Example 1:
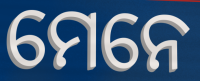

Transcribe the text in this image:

ମେନେ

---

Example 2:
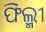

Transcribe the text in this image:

ଫିଲ୍ମୀ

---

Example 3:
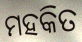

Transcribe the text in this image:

ମହକିତ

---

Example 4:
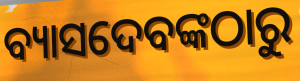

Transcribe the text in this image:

ବ୍ୟାସଦେବଙ୍କଠାରୁ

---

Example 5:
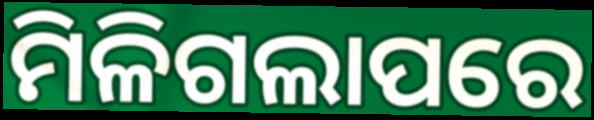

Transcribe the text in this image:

ମିଳିଗଲାପରେ